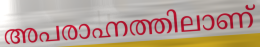
അപരാഹ്നത്തിലാണ്